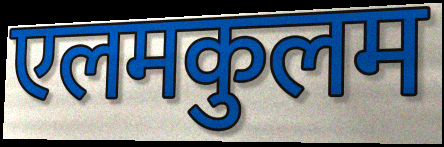
एलमकुलम